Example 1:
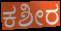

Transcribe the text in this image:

ಕಶೀರ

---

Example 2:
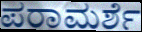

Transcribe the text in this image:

ಪರಾಮರ್ಶೆ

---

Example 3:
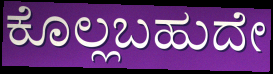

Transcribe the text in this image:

ಕೊಲ್ಲಬಹುದೇ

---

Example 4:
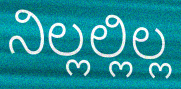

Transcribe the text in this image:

ನಿಲ್ಲಲ್ಲಿಲ್ಲ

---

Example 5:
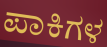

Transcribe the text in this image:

ಪಾಕಿಗಳ